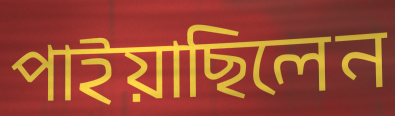
পাইয়াছিলেন